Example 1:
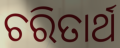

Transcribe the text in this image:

ଚରିତାର୍ଥ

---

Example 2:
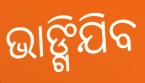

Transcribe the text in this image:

ଭାଙ୍ଗିଯିବ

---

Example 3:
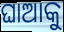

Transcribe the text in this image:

ଘାଆକୁ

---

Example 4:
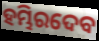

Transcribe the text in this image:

ହମ୍ଭିରଦେବ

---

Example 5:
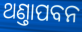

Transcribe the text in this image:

ଥଣ୍ତାପବନ